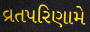
વ્રતપરિણામે